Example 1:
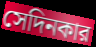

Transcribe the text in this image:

সেদিনকার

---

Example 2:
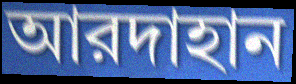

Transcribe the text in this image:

আরদাহান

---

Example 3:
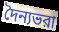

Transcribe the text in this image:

দৈন্যভরা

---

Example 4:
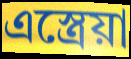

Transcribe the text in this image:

এস্ত্রেয়া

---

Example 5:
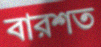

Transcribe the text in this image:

বারশত